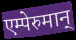
एम्पेरुमान्